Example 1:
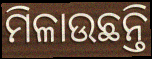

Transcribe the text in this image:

ମିଳାଉଛନ୍ତି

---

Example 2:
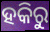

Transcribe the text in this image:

ହକିରୁ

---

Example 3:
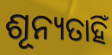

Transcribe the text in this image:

ଶୂନ୍ୟତାହିଁ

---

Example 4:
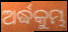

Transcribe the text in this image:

ଅର୍ଦ୍ଧକୁମ୍ଭ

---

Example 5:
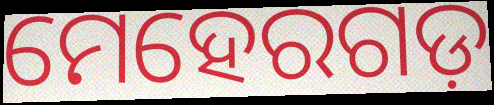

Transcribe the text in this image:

ମେହେରଗଡ଼